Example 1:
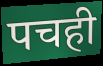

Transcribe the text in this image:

पचही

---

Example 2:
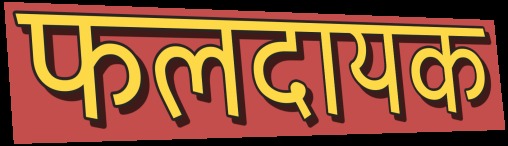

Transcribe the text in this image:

फलदायक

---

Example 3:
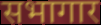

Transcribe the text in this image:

सभागार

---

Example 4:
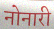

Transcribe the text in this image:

नोनारी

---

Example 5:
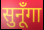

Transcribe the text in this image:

सुनूँगा